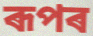
ৰূপৰ